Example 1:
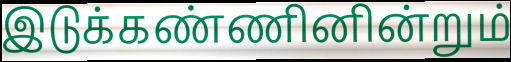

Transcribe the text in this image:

இடுக்கண்ணினின்றும்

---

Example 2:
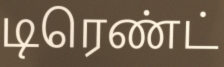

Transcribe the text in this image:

டிரெண்ட்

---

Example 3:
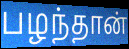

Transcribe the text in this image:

பழந்தான்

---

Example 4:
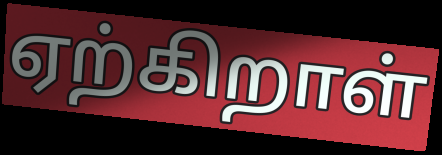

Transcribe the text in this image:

ஏற்கிறாள்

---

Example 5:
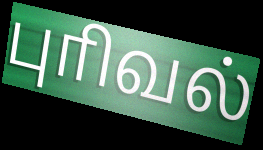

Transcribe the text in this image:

புரிவல்